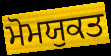
ਮੋਮਯੁਕਤ